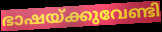
ഭാഷയ്ക്കുവേണ്ടി